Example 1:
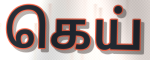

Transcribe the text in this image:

கெய்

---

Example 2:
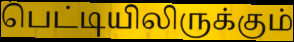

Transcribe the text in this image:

பெட்டியிலிருக்கும்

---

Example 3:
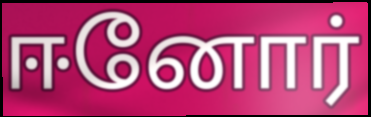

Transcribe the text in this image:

ஈனோர்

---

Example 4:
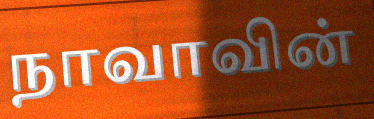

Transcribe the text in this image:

நாவாவின்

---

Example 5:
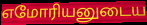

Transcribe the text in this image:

எமோரியனுடைய